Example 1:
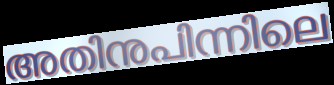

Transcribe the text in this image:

അതിനുപിന്നിലെ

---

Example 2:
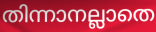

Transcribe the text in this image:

തിന്നാനല്ലാതെ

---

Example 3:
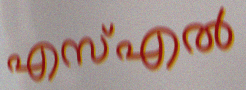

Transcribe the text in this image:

എസ്എൽ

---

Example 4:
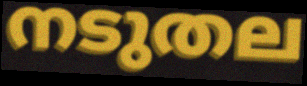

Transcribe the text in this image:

നടുതല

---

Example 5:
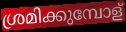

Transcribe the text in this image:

ശ്രമിക്കുമ്പോള്